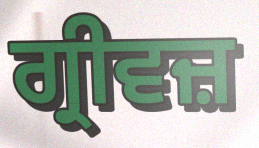
ਗ੍ਰੀਵਜ਼